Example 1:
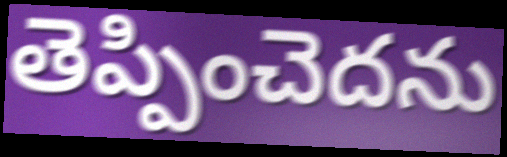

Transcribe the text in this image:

తెప్పించెదను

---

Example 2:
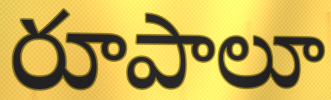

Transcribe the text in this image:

రూపాలూ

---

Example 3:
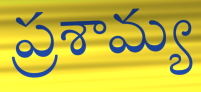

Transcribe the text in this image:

ప్రశామ్య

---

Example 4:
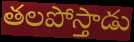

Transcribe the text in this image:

తలపోస్తాడు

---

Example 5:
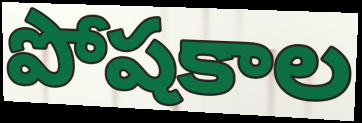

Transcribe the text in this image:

పోషకాల